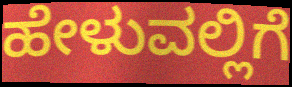
ಹೇಳುವಲ್ಲಿಗೆ